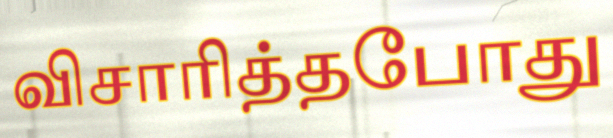
விசாரித்தபோது